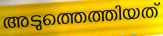
അടുത്തെത്തിയത്